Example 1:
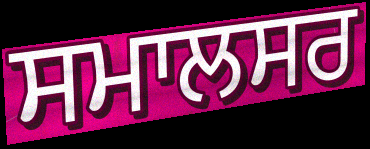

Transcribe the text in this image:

ਸਮਾਲਸਰ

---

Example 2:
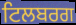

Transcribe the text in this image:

ਟਿਲਬਰਗ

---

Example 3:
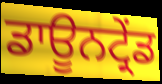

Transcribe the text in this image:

ਡਾਊਨਟ੍ਰੇਂਡ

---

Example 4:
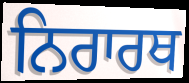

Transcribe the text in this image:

ਨਿਰਾਰਥ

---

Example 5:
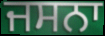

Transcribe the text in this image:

ਜਸਨਾ